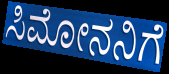
ಸಿಮೋನನಿಗೆ